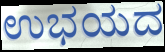
ಉಭಯದ